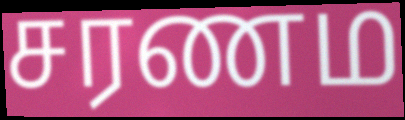
சரணம